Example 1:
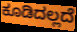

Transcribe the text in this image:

ಕೂಡಿದಲ್ಲದೆ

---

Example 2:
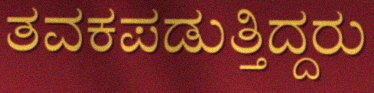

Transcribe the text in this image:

ತವಕಪಡುತ್ತಿದ್ದರು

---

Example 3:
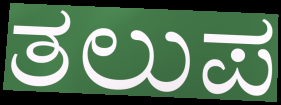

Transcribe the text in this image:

ತಲುಪ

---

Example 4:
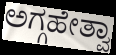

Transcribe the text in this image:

ಅಗ್ಗಹೇತ್ವಾ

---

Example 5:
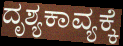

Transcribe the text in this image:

ದೃಶ್ಯಕಾವ್ಯಕ್ಕೆ